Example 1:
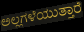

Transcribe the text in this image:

ಅಲ್ಲಗಳೆಯುತ್ತಾರೆ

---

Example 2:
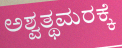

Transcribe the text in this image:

ಅಶ್ವತ್ಥಮರಕ್ಕೆ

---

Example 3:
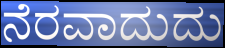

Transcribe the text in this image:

ನೆರವಾದುದು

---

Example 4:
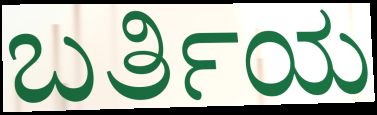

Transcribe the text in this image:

ಬರ್ತಿಯ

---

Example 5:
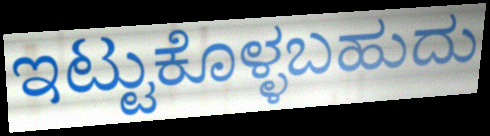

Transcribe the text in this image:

ಇಟ್ಟುಕೊಳ್ಳಬಹುದು